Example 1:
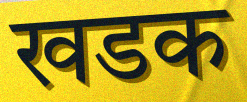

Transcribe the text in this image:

खडक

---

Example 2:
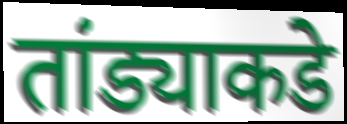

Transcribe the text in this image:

तांड्याकडे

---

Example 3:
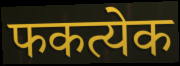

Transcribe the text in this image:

फकत्येक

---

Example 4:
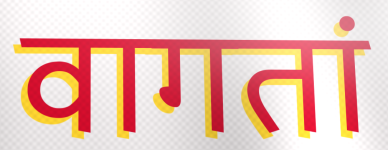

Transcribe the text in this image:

वागतां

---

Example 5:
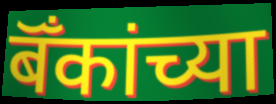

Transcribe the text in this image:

बॅँकांच्या